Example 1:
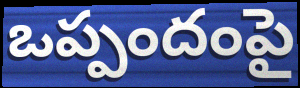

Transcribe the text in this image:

ఒప్పందంపై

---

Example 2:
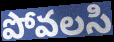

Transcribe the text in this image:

పోవలసి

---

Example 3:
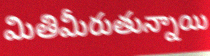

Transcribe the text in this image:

మితిమీరుతున్నాయి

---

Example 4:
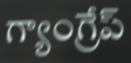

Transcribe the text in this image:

గ్యాంగ్రేప్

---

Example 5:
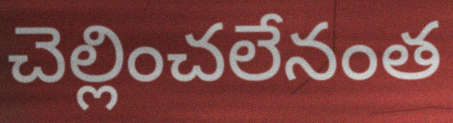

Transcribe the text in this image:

చెల్లించలేనంత